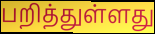
பறித்துள்ளது